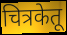
चित्रकेतू